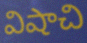
విషాచి